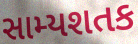
સામ્યશતક